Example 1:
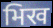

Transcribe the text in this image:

भिख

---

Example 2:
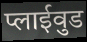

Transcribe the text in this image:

प्‍लाईवुड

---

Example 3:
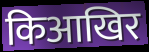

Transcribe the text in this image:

किआखिर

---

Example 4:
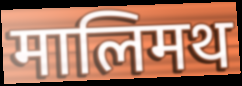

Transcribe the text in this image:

मालिमथ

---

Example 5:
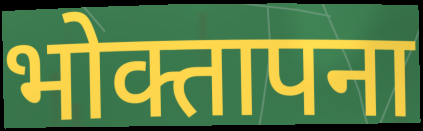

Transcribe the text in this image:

भोक्तापना